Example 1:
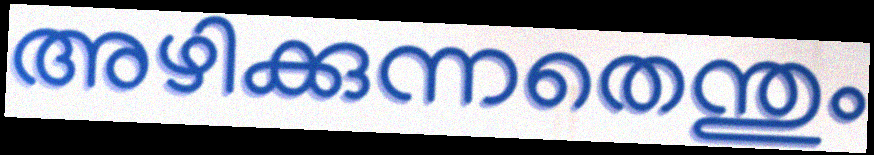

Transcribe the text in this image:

അഴിക്കുന്നതെന്തും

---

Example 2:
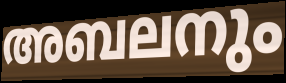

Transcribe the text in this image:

അബലനും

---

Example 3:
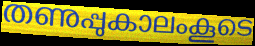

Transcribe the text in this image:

തണുപ്പുകാലംകൂടെ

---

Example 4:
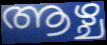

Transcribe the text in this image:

ആഴ്ച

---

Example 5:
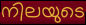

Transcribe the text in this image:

നിലയുടെ